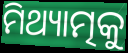
ମିଥ୍ୟାତ୍ମକୁ